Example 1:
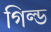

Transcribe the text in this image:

গিল্ড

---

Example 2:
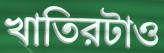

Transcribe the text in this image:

খাতিরটাও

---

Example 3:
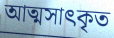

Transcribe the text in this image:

আত্মসাৎকৃত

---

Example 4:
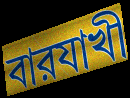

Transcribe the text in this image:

বারযাখী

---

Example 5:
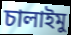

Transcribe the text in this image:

চালাইমু